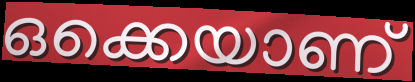
ഒക്കെയാണ്